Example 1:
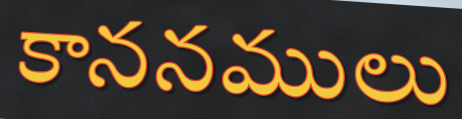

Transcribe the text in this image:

కాననములు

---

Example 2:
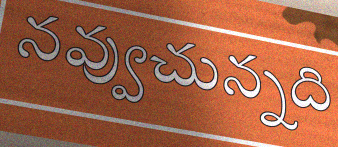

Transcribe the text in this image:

నవ్వుచున్నది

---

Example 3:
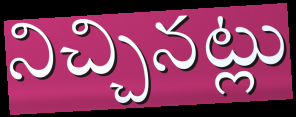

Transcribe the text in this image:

నిచ్చినట్లు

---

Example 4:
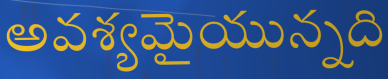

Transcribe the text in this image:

అవశ్యమైయున్నది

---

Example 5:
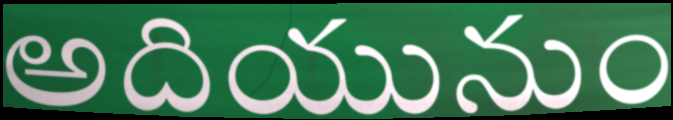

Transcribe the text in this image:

అదియునుం